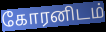
கோரனிடம்